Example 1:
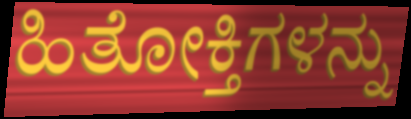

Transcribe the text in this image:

ಹಿತೋಕ್ತಿಗಳನ್ನು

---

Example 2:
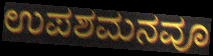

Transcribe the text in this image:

ಉಪಶಮನವೂ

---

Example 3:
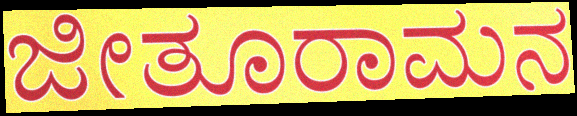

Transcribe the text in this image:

ಜೀತೂರಾಮನ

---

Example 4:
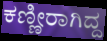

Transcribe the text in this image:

ಕಣ್ಣೀರಾಗಿದ್ದ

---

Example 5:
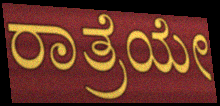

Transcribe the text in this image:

ರಾತ್ರೆಯೇ